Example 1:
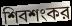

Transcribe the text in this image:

শিবশংকর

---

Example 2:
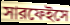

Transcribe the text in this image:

সারফেইসে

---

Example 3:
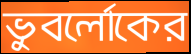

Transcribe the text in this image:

ভুবর্লোকের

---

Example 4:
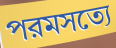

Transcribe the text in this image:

পরমসত্যে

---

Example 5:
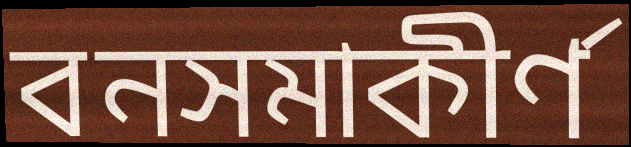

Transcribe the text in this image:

বনসমাকীর্ণ